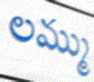
లమ్ము